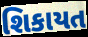
શિકાયત